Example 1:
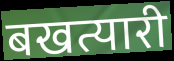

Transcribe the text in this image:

बखत्यारी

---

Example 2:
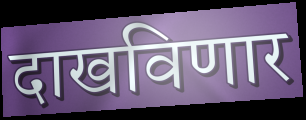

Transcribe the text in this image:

दाखविणार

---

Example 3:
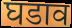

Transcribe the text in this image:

घडाव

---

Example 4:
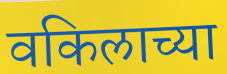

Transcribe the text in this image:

वकिलाच्या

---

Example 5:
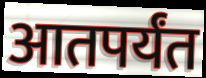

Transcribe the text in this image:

आतपर्यंत